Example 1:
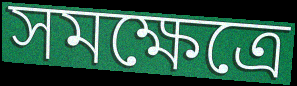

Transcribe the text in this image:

সমক্ষেত্রে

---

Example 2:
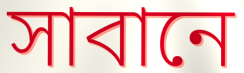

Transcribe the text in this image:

সাবানে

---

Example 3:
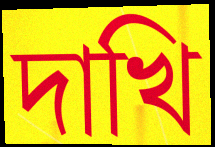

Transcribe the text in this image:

দাখি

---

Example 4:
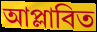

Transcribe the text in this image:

আপ্লাবিত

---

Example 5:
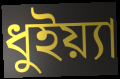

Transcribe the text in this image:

ধুইয়্যা